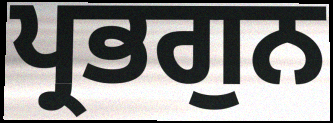
ਪ੍ਰਭਗੁਨ